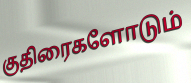
குதிரைகளோடும்